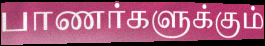
பாணர்களுக்கும்